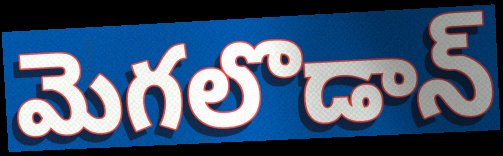
మెగలొడాన్